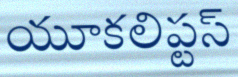
యూకలిప్టస్